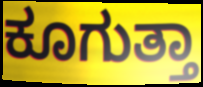
ಕೂಗುತ್ತಾ